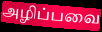
அழிப்பவை